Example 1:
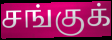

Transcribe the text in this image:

சங்குக்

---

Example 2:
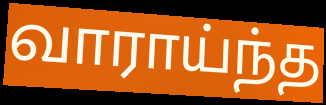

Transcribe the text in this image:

வாராய்ந்த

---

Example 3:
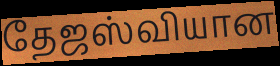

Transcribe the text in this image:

தேஜஸ்வியான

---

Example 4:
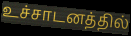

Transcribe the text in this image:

உச்சாடனத்தில்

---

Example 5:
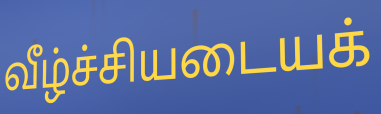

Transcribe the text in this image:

வீழ்ச்சியடையக்